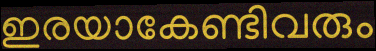
ഇരയാകേണ്ടിവരും